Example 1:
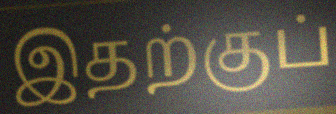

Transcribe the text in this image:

இதற்குப்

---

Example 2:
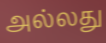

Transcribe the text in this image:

அல்லது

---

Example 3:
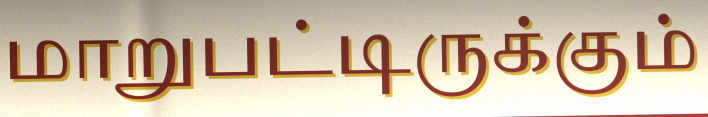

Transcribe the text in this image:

மாறுபட்டிருக்கும்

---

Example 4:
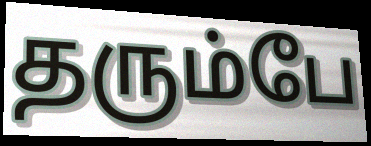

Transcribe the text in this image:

தரும்பே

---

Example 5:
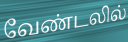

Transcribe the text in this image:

வேண்டலில்